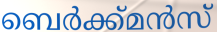
ബെർക്ക്മൻസ്